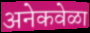
अनेकवेळा